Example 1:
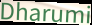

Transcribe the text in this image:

Dharumi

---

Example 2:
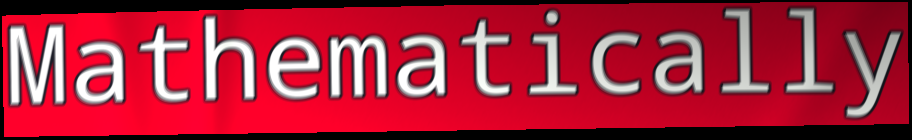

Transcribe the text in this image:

Mathematically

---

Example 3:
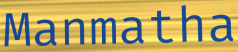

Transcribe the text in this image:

Manmatha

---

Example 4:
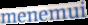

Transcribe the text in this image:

menemui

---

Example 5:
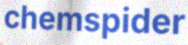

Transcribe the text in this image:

chemspider